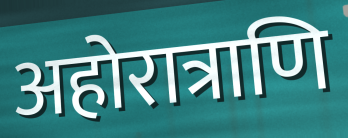
अहोरात्राणि